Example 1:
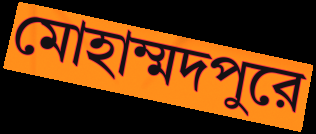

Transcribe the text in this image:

মোহাম্মদপুরে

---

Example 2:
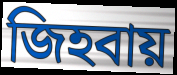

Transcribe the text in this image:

জিহবায়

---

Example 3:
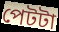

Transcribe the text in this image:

পেটটা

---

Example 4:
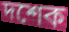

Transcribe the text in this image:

দশেক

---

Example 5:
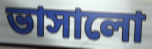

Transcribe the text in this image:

ভাসালো